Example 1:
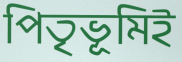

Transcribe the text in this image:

পিতৃভূমিই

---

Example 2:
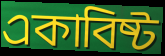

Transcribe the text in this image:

একাবিষ্ট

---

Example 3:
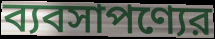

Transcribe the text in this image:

ব্যবসাপণ্যের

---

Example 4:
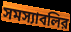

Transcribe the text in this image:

সমস্যাবলির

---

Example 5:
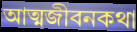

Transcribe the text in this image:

আত্মজীবনকথা